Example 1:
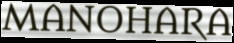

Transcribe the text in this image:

MANOHARA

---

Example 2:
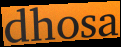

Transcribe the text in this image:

dhosa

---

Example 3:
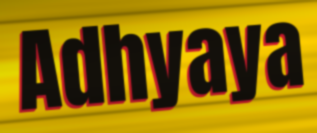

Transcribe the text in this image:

Adhyaya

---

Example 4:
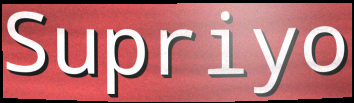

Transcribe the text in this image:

Supriyo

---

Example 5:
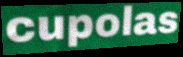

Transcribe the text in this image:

cupolas